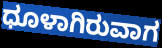
ಧೂಳಾಗಿರುವಾಗ